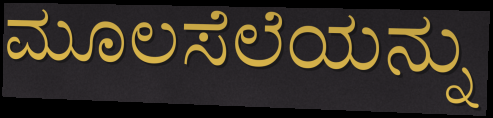
ಮೂಲಸೆಲೆಯನ್ನು